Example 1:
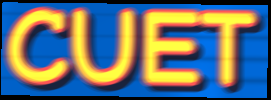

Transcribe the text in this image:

CUET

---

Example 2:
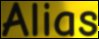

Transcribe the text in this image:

Alias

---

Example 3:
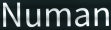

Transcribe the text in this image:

Numan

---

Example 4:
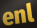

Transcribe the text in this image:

enl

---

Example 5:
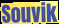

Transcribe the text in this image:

Souvik